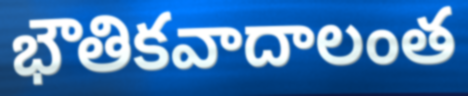
భౌతికవాదాలంత